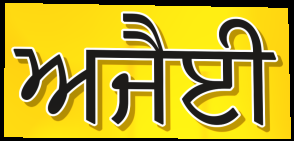
ਅਜੈਈ